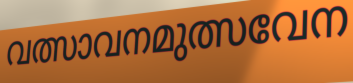
വത്സാവനമുത്സവേന